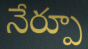
నేర్పూ